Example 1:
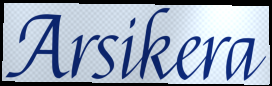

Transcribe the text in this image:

Arsikera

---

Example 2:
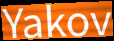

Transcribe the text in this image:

Yakov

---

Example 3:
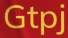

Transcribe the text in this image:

Gtpj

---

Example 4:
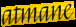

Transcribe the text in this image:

atmane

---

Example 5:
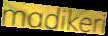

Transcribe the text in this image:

madikeri